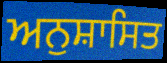
ਅਨੁਸ਼ਾਸਿਤ